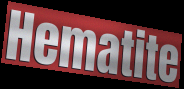
Hematite